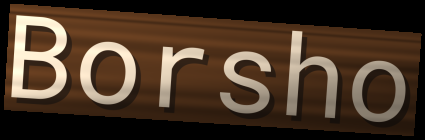
Borsho